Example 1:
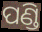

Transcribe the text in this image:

ପଣ୍ଡି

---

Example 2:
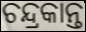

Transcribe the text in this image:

ଚନ୍ଦ୍ରକାନ୍ତ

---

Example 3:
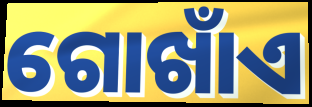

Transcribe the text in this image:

ଗୋଖାଁଏ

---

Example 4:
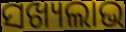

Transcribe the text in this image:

ସଖ୍ୟଲାଭ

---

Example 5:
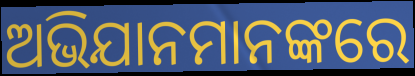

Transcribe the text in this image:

ଅଭିଯାନମାନଙ୍କରେ